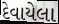
દેવાયેલા